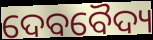
ଦେବବୈଦ୍ୟ